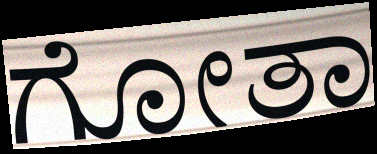
ಗೋತಾ